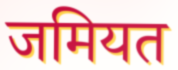
जमियत